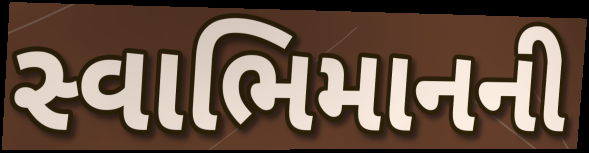
સ્વાભિમાનની